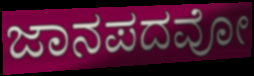
ಜಾನಪದವೋ